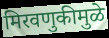
मिरवणुकीमुळे